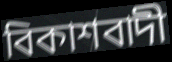
বিকাশবাদী